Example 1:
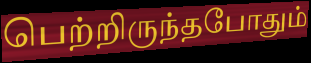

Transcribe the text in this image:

பெற்றிருந்தபோதும்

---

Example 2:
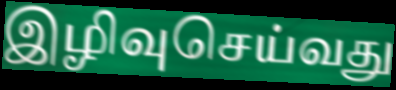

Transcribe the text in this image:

இழிவுசெய்வது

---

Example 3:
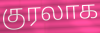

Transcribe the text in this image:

குரலாக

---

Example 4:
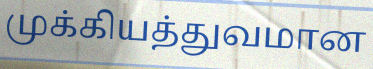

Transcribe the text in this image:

முக்கியத்துவமான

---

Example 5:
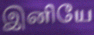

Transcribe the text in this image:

இனியே